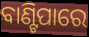
ବାଣ୍ଟିପାରେ